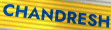
CHANDRESH